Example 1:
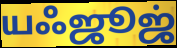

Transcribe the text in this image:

யஃஜூஜ்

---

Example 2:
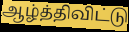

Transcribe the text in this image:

ஆழ்த்திவிட்டு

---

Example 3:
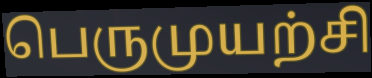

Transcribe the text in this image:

பெருமுயற்சி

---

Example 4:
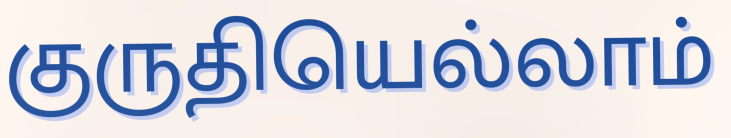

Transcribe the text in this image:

குருதியெல்லாம்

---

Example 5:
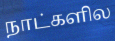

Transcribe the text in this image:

நாட்களில